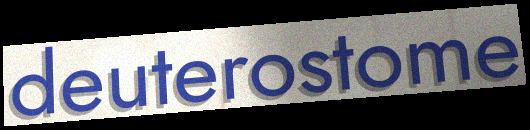
deuterostome